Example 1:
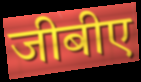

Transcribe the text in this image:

जीबीए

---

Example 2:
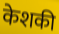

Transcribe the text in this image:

केशकी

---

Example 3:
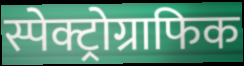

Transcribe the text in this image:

स्पेक्ट्रोग्राफिक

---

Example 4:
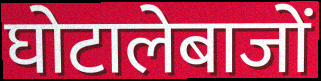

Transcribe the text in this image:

घोटालेबाजों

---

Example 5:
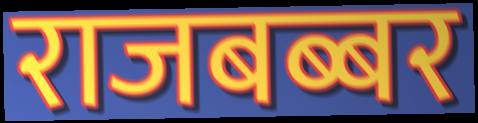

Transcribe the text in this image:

राजबब्बर